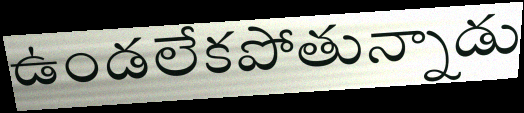
ఉండలేకపోతున్నాడు